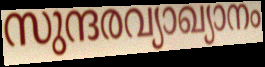
സുന്ദരവ്യാഖ്യാനം